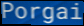
Porgai